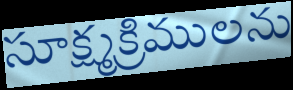
సూక్ష్మక్రిములను